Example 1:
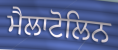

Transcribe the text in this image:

ਮੈਲਾਟੋਲਿਨ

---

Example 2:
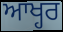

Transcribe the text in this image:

ਆਖ੍ਹਰ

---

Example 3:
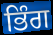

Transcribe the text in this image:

ਭਿੰਗ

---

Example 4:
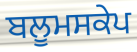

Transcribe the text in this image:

ਬਲੂਮਸਕੇਪ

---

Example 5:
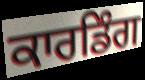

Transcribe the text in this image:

ਕਾਰਡਿੰਗ